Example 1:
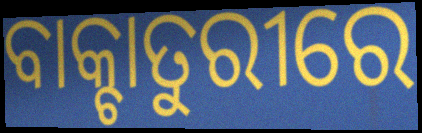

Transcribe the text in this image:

ବାକ୍ଚାତୁରୀରେ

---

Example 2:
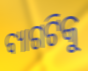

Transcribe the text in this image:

ବ୍ୟାଗଟିକୁ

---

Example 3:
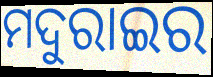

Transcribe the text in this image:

ମଦୁରାଇର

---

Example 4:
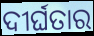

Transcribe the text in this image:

ଦୀର୍ଘତାର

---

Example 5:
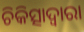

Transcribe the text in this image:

ଚିକିତ୍ସାଦ୍ଵାରା